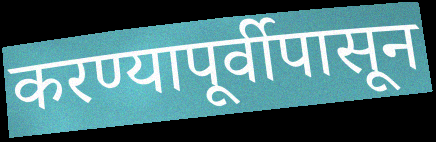
करण्यापूर्वीपासून